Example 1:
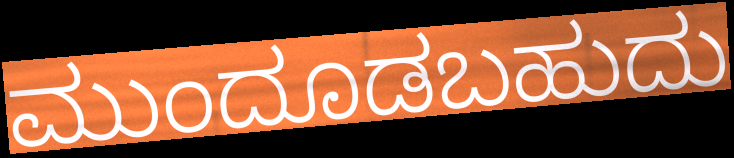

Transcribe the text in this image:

ಮುಂದೂಡಬಹುದು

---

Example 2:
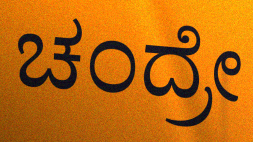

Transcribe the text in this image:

ಚಂದ್ರೇ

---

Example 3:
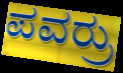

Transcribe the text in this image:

ಪವರ್ರು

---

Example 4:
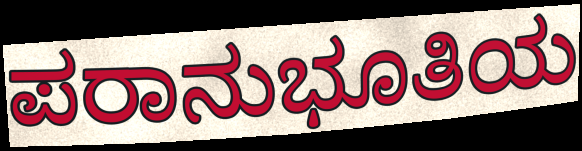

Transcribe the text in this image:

ಪರಾನುಭೂತಿಯ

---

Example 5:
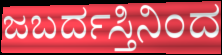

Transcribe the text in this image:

ಜಬರ್ದಸ್ತಿನಿಂದ